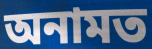
অনামত